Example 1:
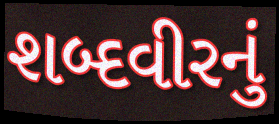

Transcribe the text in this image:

શબ્દવીરનું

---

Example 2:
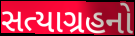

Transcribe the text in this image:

સત્યાગ્રહનો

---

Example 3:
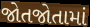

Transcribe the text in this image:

જોતજોતામાં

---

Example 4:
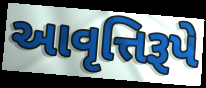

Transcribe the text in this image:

આવૃત્તિરૂપે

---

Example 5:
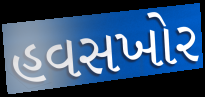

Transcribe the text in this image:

હવસખોર